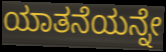
ಯಾತನೆಯನ್ನೇ